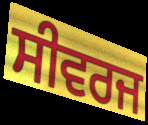
ਸੀਵਰਜ